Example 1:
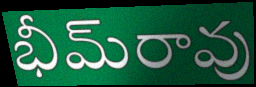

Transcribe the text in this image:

భీమ్‌రావు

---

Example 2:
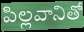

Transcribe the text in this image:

పిల్లవానితో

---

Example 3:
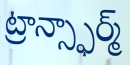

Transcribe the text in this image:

ట్రాన్స్ఫార్మ్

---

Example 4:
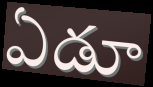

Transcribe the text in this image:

ఏడూ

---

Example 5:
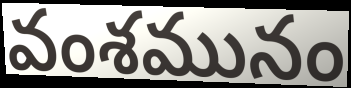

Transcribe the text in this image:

వంశమునం